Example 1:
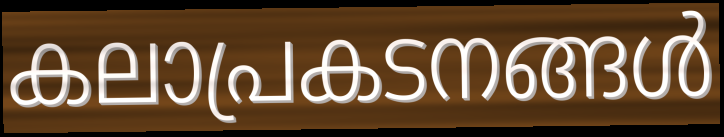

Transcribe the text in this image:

കലാപ്രകടനങ്ങൾ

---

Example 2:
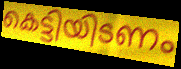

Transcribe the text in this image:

കെട്ടിയിടണം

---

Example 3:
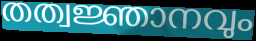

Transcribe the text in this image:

തത്വജ്ഞാനവും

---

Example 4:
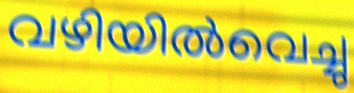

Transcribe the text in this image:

വഴിയിൽവെച്ചു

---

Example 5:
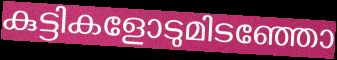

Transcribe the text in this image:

കുട്ടികളോടുമിടഞ്ഞോ